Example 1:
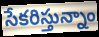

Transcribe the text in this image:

సేకరిస్తున్నాం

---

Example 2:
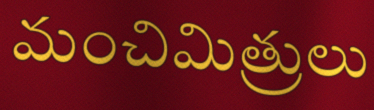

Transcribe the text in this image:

మంచిమిత్రులు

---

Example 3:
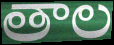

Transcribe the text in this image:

తాల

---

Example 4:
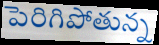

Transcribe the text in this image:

పెరిగిపోతున్న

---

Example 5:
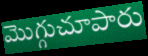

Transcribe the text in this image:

మొగ్గుచూపారు